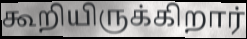
கூறியிருக்கிறார்